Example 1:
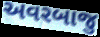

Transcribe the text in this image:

અવરબાજુ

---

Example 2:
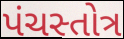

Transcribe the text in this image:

પંચસ્તોત્ર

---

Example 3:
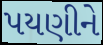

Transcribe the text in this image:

પયણીને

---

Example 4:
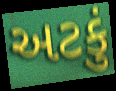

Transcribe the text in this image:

અટકું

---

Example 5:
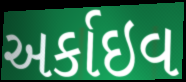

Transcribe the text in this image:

અર્કાઇવ